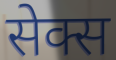
सेक्स